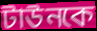
টাউনকে